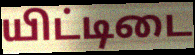
யிட்டிடை